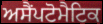
ਅਸੈਂਪਟੋਮੈਟਿਕ